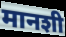
मानशी